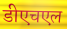
डीएचएल